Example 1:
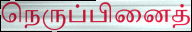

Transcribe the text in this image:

நெருப்பினைத்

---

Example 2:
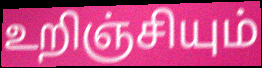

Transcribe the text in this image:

உறிஞ்சியும்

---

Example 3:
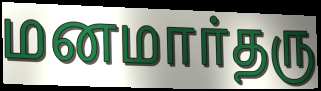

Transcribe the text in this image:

மனமார்தரு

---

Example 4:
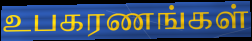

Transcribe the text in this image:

உபகரணங்கள்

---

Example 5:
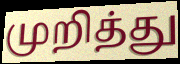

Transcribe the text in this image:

முறித்து